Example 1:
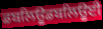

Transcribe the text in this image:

ਡਬਲਿਊਡਬਲਿਊਈ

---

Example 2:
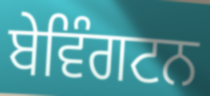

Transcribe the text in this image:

ਬੇਵਿੰਗਟਨ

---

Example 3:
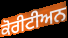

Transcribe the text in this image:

ਕੋਰੀਟੀਅਨ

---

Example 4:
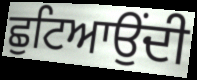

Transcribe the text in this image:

ਛੁਟਿਆਉਂਦੀ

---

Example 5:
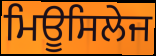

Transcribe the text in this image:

ਮਿਊਸਿਲੇਜ